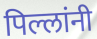
पिल्लांनी